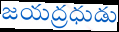
జయద్రధుడు